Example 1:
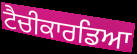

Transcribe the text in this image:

ਟੈਚੀਕਾਰਡਿਆ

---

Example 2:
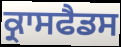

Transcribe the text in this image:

ਕ੍ਰਾਸਫੈਡਸ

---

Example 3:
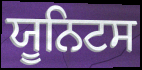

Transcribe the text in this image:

ਯੂਨਿਟਸ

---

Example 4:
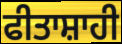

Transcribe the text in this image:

ਫੀਤਾਸ਼ਾਹੀ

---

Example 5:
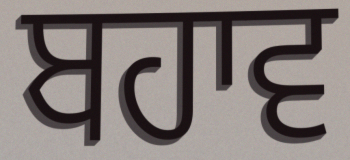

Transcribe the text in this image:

ਬਹਾਵ